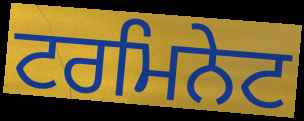
ਟਰਮਿਨੇਟ